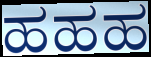
ಹಹಹ